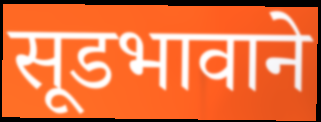
सूडभावाने